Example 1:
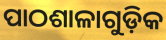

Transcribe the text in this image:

ପାଠଶାଳାଗୁଡ଼ିକ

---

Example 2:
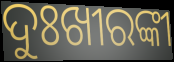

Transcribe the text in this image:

ଦୁଃଖୀରଙ୍କୀ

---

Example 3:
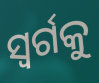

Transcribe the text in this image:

ସ୍ୱର୍ଗକୁ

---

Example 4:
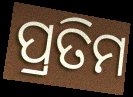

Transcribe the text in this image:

ପ୍ରତିମ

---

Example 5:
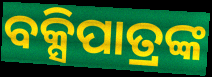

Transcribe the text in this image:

ବକ୍ସିପାତ୍ରଙ୍କ